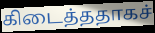
கிடைத்ததாகச்